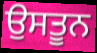
ਉਸਤੂਨ